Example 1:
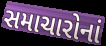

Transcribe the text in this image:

સમાચારોનાં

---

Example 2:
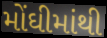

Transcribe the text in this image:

મોંઘીમાંથી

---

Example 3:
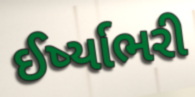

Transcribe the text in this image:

ઈર્ષ્યાભરી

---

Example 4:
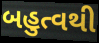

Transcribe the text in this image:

બહુત્વથી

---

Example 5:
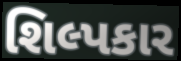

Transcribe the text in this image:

શિલ્પકાર